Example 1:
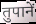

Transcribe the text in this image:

तुपानें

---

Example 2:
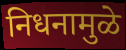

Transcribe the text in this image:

निधनामुळे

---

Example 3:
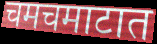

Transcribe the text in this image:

चमचमाटात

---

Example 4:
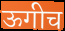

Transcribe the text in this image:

ऊगीच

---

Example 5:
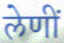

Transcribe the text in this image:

लेणीं